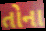
તોના